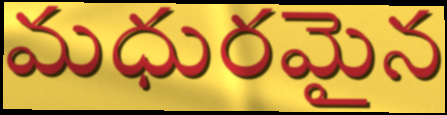
మధురమైన